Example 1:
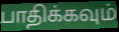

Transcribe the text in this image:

பாதிக்கவும்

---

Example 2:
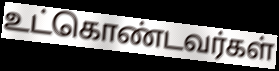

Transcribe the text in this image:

உட்கொண்டவர்கள்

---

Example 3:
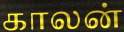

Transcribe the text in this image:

காலன்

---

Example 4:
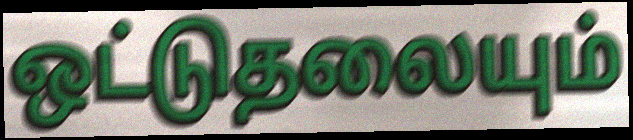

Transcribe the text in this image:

ஒட்டுதலையும்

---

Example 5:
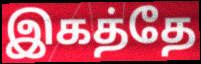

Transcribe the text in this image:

இகத்தே